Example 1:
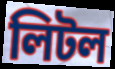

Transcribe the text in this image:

লিটল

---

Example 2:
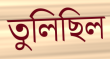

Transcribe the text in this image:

তুলিছিল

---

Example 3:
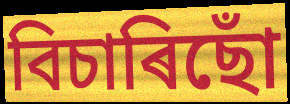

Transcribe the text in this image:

বিচাৰিছোঁ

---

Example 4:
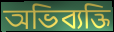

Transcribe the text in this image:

অভিব্যক্তি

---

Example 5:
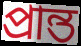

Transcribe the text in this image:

প্ৰান্ত